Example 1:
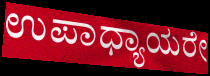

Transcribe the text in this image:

ಉಪಾಧ್ಯಾಯರೇ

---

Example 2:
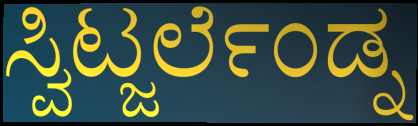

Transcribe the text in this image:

ಸ್ವಿಟ್ಜರ್ಲೆಂಡ್ನ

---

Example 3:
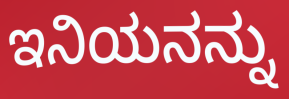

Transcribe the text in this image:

ಇನಿಯನನ್ನು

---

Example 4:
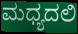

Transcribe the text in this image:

ಮಧ್ಯದಲಿ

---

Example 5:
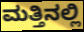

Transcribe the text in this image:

ಮತ್ತಿನಲ್ಲಿ